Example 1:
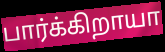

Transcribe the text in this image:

பார்க்கிறாயா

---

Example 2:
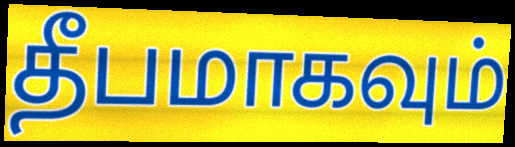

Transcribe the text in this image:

தீபமாகவும்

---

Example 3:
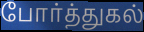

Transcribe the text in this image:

போர்த்துகல்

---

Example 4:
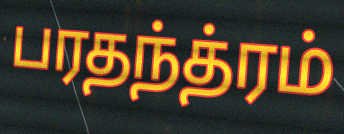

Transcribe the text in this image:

பரதந்த்ரம்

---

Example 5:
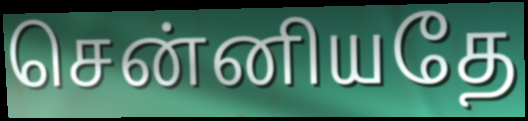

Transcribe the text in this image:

சென்னியதே